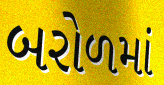
બરોળમાં